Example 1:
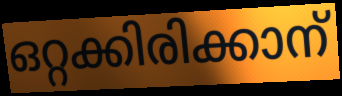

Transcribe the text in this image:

ഒറ്റക്കിരിക്കാന്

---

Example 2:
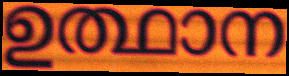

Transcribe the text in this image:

ഉത്ഥാന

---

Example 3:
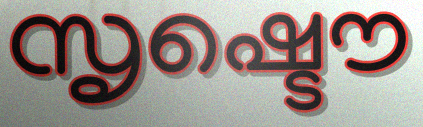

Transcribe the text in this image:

സൃഷ്ടൌ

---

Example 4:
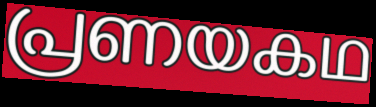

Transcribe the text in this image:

പ്രണയകഥ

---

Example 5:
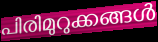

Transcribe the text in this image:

പിരിമുറുക്കങ്ങൾ